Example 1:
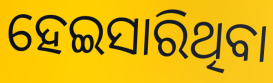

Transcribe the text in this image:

ହେଇସାରିଥିବା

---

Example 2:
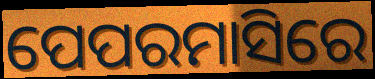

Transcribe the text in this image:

ପେପରମାସିରେ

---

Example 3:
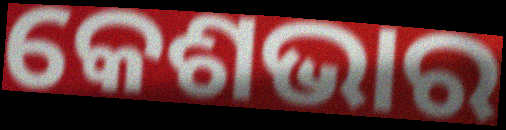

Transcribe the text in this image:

କେଶଭାର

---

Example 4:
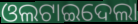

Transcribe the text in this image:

ଓଲଟାଇଦେଲା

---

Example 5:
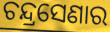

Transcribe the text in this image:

ଚନ୍ଦ୍ରସେଣାର